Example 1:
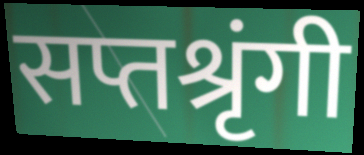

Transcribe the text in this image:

सप्तश्रृंगी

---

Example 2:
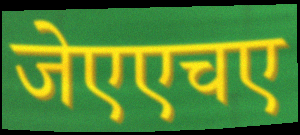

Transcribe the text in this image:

जेएएचए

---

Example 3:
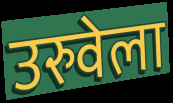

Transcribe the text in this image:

उरुवेला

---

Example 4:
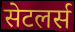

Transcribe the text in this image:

सेटलर्स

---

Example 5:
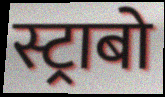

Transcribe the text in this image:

स्ट्राबो